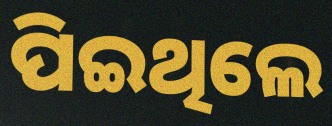
ପିଇଥିଲେ